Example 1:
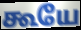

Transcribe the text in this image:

கூயே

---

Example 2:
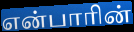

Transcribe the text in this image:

என்பாரின்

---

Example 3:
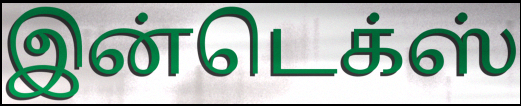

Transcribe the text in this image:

இன்டெக்ஸ்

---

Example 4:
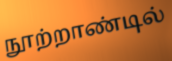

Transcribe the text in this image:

நூற்றாண்டில்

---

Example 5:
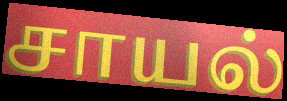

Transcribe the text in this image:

சாயல்